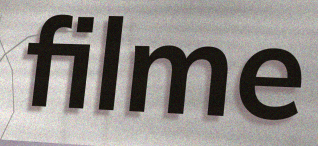
filme